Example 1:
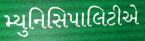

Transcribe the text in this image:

મ્યુનિસિપાલિટીએ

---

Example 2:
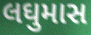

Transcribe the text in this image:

લઘુમાસ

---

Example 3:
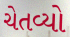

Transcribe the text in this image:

ચેતવ્યો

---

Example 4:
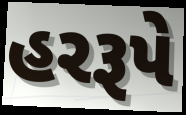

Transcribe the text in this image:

હરરૂપે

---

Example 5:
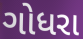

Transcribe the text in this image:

ગોધરા